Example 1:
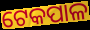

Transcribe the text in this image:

ଟେକପାଳ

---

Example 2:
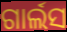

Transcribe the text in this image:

ଗାର୍ଲସ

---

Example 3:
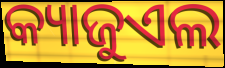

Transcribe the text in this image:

କ୍ୟାଜୁଏଲ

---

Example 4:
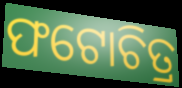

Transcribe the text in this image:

ଫଟୋଚିତ୍ର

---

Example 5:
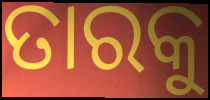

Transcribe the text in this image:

ତାରକୁ